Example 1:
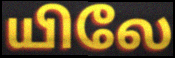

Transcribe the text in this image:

யிலே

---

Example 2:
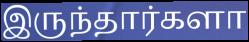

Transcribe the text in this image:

இருந்தார்களா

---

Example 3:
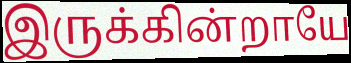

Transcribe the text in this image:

இருக்கின்றாயே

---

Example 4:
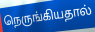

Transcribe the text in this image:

நெருங்கியதால்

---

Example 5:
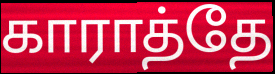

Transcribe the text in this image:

காராத்தே